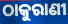
ଠାକୁରାଣୀ